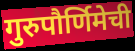
गुरुपौर्णिमेची